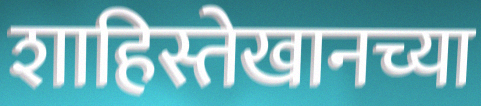
शाहिस्तेखानच्या